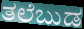
ತಲೆಬುಡ